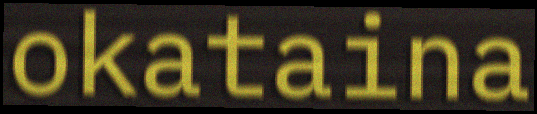
okataina